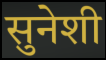
सुनेशी